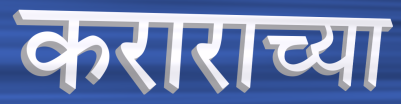
कराराच्या